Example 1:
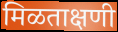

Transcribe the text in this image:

मिळताक्षणी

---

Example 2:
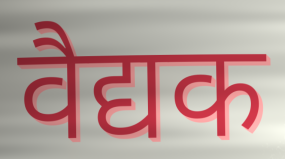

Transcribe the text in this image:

वैद्यक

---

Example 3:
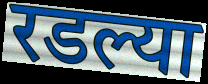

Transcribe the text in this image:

रडल्या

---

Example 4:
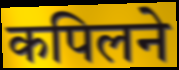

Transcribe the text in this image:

कपिलने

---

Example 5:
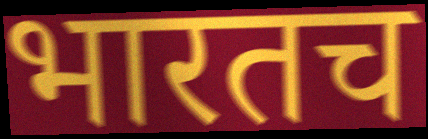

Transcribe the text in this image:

भारतच